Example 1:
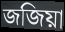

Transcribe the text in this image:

জজিয়া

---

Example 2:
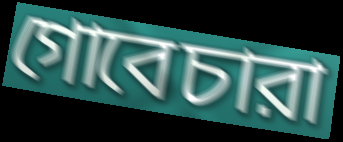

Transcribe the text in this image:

গোবেচারা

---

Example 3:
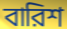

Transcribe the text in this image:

বারিশ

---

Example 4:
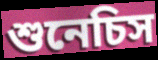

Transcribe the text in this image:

শুনেচিস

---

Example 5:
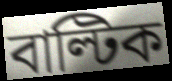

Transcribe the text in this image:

বাল্টিক